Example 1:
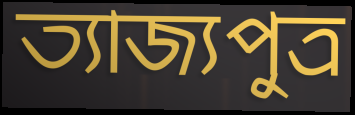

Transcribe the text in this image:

ত্যাজ্যপুত্র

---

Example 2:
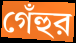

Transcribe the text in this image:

গেঁহুর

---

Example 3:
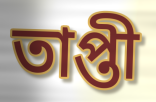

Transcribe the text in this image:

তাপ্তী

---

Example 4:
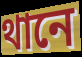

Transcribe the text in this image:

থানে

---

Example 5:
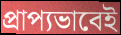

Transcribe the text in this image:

প্রাপ্যভাবেই